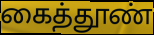
கைத்தூண்